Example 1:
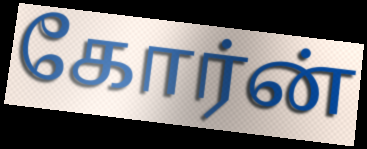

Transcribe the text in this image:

கோர்ன்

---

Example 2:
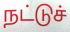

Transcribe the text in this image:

நட்டுச்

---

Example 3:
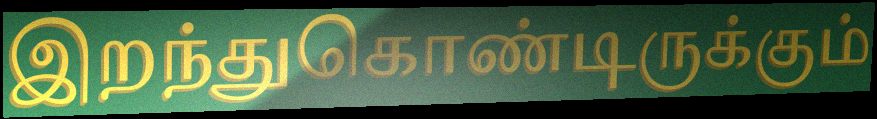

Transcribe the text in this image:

இறந்துகொண்டிருக்கும்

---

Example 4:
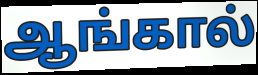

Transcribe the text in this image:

ஆங்கால்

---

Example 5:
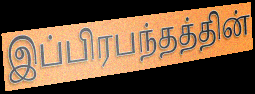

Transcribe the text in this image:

இப்பிரபந்தத்தின்